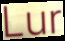
Lur